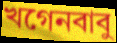
খগেনবাবু